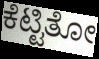
ಕೆಟ್ಟಿತೋ